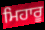
ਮਿਹਾਰੂ